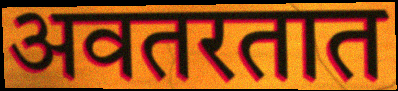
अवतरतात